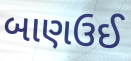
બાણઉઈ